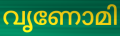
വൃണോമി